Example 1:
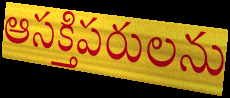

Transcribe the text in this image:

ఆసక్తిపరులను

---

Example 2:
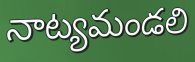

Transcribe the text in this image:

నాట్యమండలి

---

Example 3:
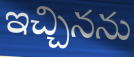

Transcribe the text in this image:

ఇచ్చినను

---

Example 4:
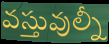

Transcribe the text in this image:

వస్తువుల్నీ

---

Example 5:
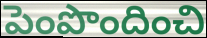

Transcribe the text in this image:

పెంపొందించి